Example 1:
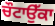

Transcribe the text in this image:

ਚੌਟਾਉੱਕਾ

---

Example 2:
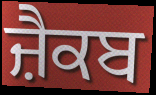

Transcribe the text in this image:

ਜ਼ੈਕਬ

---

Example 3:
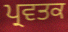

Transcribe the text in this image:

ਪ੍ਰਵਤਕ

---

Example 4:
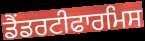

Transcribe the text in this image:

ਡੈਂਡਰਟੀਫਾਰਮਿਸ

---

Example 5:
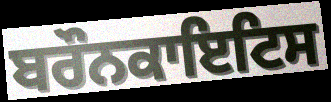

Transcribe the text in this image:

ਬਰੌਨਕਾਇਟਿਸ